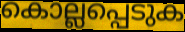
കൊല്ലപ്പെടുക